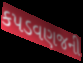
કપડવણજની